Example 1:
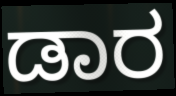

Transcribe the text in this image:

ಡಾರ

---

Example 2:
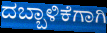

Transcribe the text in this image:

ದಬ್ಬಾಳಿಕೆಗಾಗಿ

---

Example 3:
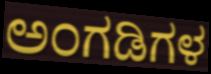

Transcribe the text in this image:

ಅಂಗಡಿಗಳ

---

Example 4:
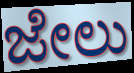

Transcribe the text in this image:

ಜೇಲು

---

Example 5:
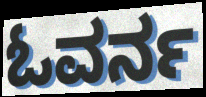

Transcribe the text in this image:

ಓವರ್ನ